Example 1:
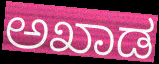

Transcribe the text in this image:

ಅಖಾಡ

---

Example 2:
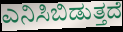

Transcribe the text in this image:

ಎನಿಸಿಬಿಡುತ್ತದೆ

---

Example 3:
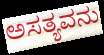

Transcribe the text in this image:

ಅಸತ್ಯವನು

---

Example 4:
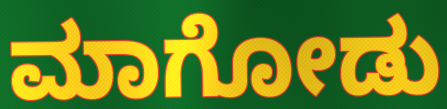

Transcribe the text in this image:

ಮಾಗೋಡು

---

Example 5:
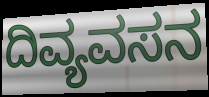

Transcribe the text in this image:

ದಿವ್ಯವಸನ